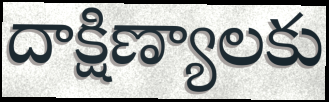
దాక్షిణ్యాలకు